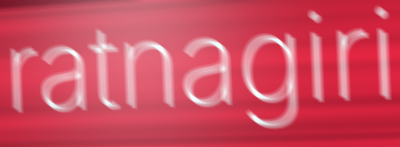
ratnagiri